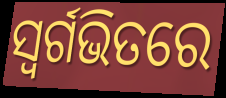
ସ୍ଵର୍ଗଭିତରେ